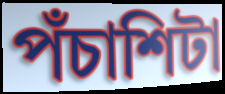
পঁচাশিটা